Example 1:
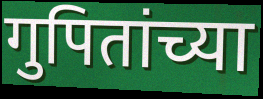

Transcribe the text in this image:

गुपितांच्या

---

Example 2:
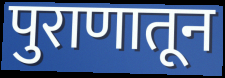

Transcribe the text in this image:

पुराणातून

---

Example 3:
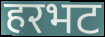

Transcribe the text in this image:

हरभट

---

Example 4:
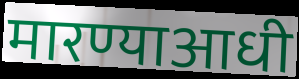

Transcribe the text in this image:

मारण्याआधी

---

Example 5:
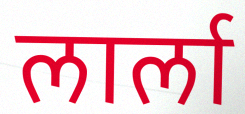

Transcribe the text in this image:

लार्ला